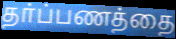
தர்ப்பணத்தை